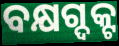
ବକ୍ଷଗ୍ଦକ୍ଟ